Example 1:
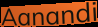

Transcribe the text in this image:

Aanandi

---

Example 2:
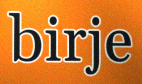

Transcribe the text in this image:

birje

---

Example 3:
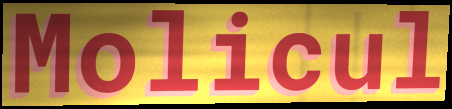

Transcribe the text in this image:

Molicul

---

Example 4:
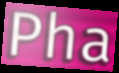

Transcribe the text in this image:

Pha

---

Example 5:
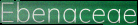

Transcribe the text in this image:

Ebenaceae